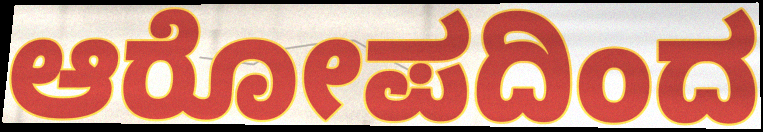
ಆರೋಪದಿಂದ